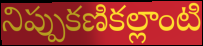
నిప్పుకణికల్లాంటి